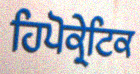
ਹਿਪੋਕ੍ਰੇਟਿਕ